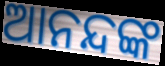
ଆନନ୍ଦଙ୍କ